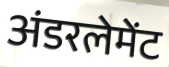
अंडरलेमेंट